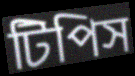
টিপিস